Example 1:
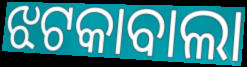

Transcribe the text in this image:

ଝଟକାବାଲା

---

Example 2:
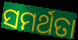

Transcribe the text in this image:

ସମର୍ଥତା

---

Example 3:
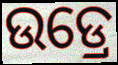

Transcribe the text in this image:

ଉଡ୍ରେ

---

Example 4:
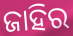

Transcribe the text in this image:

ଜାହିର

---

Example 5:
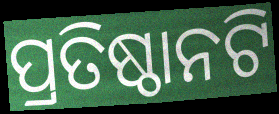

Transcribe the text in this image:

ପ୍ରତିଷ୍ଠାନଟି